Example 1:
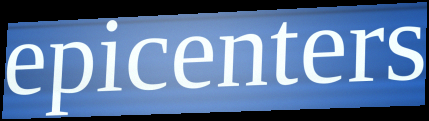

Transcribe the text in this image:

epicenters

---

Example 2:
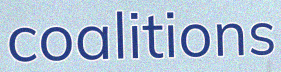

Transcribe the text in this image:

coalitions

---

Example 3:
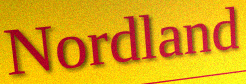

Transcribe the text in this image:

Nordland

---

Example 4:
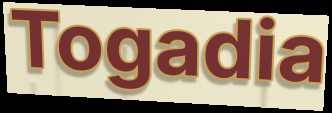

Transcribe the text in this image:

Togadia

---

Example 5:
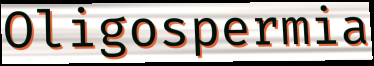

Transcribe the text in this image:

Oligospermia